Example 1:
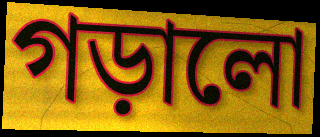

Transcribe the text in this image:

গড়ালো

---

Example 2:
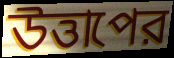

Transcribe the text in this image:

উত্তাপের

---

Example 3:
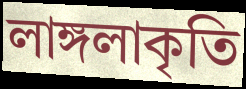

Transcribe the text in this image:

লাঙ্গলাকৃতি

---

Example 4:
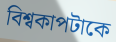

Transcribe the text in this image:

বিশ্বকাপটাকে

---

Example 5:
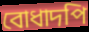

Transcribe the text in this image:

বোধাদপি